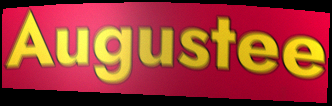
Augustee